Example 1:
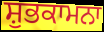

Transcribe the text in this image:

ਸ਼ੁਭਕਾਮਨਾ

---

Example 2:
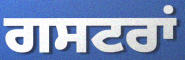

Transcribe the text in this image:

ਗਸਟਰਾਂ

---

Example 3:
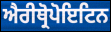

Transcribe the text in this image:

ਐਰੀਥ੍ਰੋਪੋਇਟਿਨ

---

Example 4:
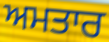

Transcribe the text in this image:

ਅਮਤਾਰ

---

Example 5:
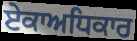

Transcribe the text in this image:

ਏਕਾਅਧਿਕਾਰ